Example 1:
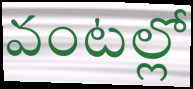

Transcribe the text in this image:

వంటల్లో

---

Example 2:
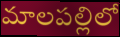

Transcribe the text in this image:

మాలపల్లిలో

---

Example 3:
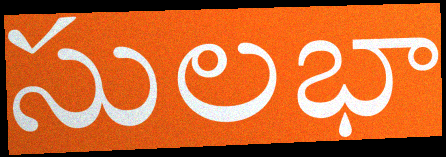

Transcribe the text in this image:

సులభా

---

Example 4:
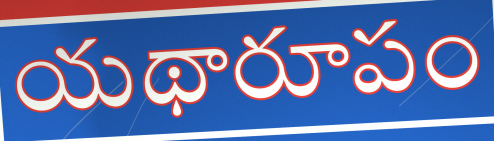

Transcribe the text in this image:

యథారూపం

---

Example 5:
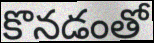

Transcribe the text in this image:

కొనడంతో